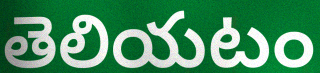
తెలియటం